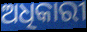
ଅଧିକାରୀ